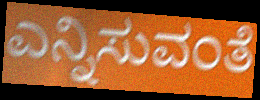
ಎನ್ನಿಸುವಂತೆ